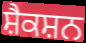
ਸ਼ੈਕਸ਼ਨ